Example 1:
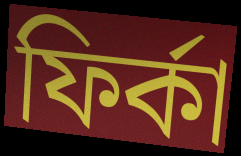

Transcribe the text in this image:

ফির্কা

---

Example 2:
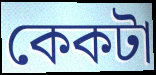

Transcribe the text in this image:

কেকটা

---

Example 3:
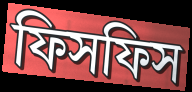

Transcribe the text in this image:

ফিসফিস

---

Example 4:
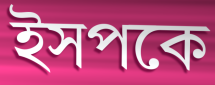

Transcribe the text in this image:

ইসপকে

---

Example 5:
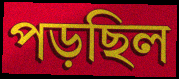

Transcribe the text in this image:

পড়ছিল